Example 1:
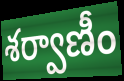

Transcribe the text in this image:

శర్వాణీం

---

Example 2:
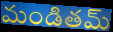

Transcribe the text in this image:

మండితమ్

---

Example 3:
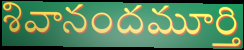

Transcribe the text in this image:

శివానందమూర్తి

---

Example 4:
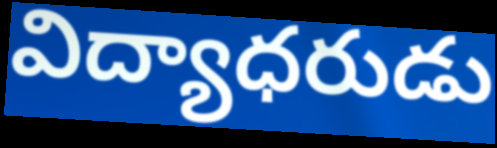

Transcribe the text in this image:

విద్యాధరుడు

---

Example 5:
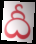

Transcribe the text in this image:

దీ